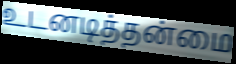
உடனடித்தன்மை